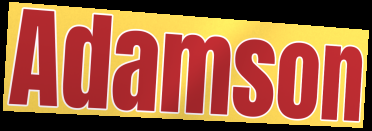
Adamson